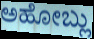
ಅಹೋಬ್ಲು